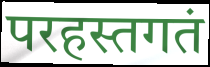
परहस्तगतं